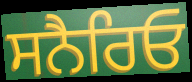
ਸਨੈਰਿਓ